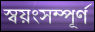
স্বয়ংসম্পূৰ্ণ